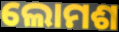
ଲୋମଶ